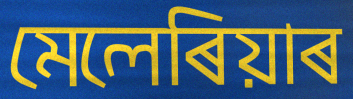
মেলেৰিয়াৰ